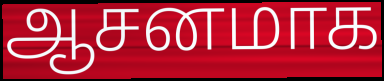
ஆசனமாக